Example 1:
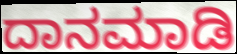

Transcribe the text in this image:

ದಾನಮಾಡಿ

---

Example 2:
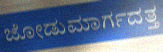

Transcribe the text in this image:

ಜೋಡುಮಾರ್ಗದತ್ತ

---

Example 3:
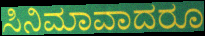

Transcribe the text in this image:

ಸಿನಿಮಾವಾದರೂ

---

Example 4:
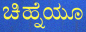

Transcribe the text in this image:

ಚಿಹ್ನೆಯೂ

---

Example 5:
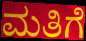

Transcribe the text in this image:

ಮತಿಗೆ